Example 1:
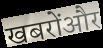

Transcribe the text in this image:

खबरोंऔर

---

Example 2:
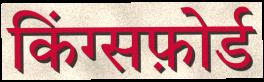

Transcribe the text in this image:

किंग्सफ़ोर्ड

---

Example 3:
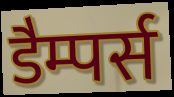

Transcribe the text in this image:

डैम्पर्स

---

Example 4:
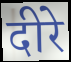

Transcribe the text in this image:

दीरे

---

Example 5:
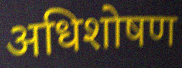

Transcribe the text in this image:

अधिशोषण